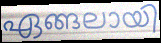
ഏങ്ങലായി